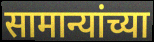
सामान्यांच्या